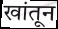
खांतून